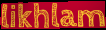
likhlam